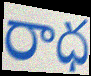
రాధ